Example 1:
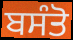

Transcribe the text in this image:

ਬਸੰਤੋ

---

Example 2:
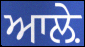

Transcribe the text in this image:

ਆਲ਼ੇ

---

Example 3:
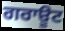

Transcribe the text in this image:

ਗਰਾਊਟ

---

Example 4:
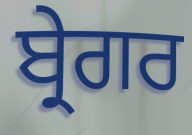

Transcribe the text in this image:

ਬ੍ਰੇਗਰ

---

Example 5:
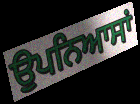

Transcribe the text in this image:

ਉਪਨਿਆਸਾਂ